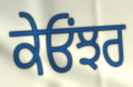
ਕੇਓਂਝਰ